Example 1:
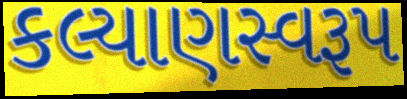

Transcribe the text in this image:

કલ્યાણસ્વરૂપ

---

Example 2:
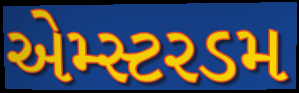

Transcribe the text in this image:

એમ્સ્ટરડમ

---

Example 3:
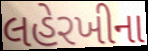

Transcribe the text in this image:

લહેરખીના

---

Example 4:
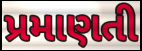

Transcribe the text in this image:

પ્રમાણતી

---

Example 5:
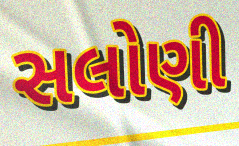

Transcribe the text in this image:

સલોણી